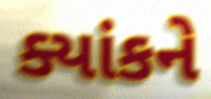
ક્યાંકને